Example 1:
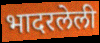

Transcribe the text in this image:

भादरलेली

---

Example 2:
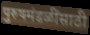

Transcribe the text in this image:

पुरुषमंडळींसाठी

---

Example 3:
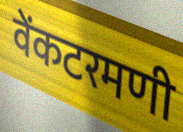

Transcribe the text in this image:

वेंकटरमणी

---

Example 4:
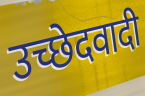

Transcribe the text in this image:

उच्छेदवादी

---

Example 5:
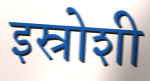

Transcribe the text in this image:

इस्रोशी